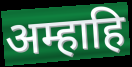
अम्हाहि